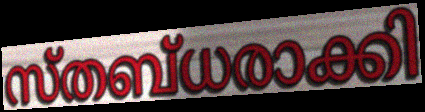
സ്തബ്ധരാക്കി